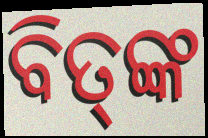
ବିତ୍‌ଙ୍କ